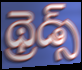
థ్రెడ్స్